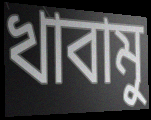
খাবামু